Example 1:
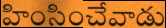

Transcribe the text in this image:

హింసించేవాడు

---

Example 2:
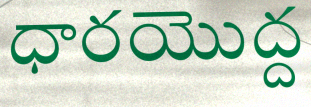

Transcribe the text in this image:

ధారయొద్ద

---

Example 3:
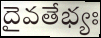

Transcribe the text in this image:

దైవతేభ్యః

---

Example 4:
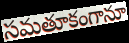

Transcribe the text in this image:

సమతూకంగానూ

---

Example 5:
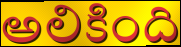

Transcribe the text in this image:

అలికింది